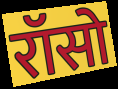
रॉसो